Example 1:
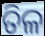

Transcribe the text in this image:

ତିଳ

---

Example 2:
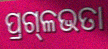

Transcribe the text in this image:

ପ୍ରଗ୍‍ଳଭତା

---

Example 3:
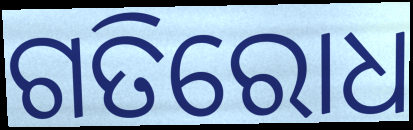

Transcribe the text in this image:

ଗତିରୋଧ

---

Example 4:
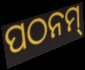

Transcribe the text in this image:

ପଠନମ୍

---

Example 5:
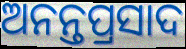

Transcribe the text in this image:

ଅନନ୍ତପ୍ରସାଦ